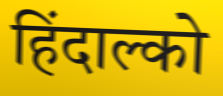
हिंदाल्को